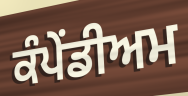
ਕੰਪੇਂਡੀਅਮ